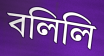
বলিলি